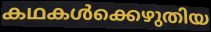
കഥകൾക്കെഴുതിയ